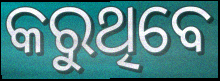
କରୁଥିବେ